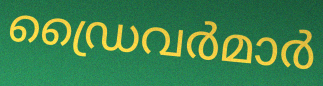
ഡ്രൈവർമാർ